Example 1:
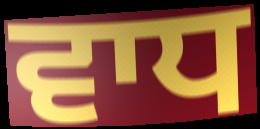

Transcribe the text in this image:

ਵਾਧ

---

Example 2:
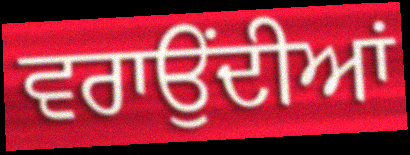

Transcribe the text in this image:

ਵਰਾਉਂਦੀਆਂ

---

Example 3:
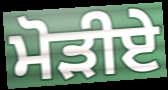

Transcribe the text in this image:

ਮੋੜੀਏ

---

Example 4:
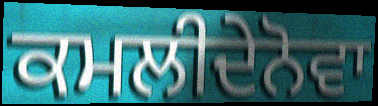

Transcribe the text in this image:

ਕਮਲੀਦੇਨੋਵਾ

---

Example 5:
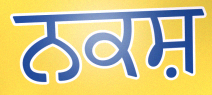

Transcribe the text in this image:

ਨਕਸ਼